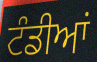
ਟੰਡੀਆਂ